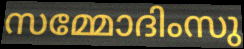
സമ്മോദിംസു